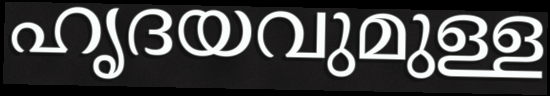
ഹൃദയവുമുള്ള